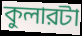
কুলারটা